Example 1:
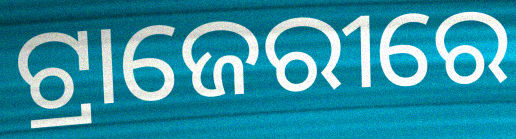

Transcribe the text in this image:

ଟ୍ରାଜେରୀରେ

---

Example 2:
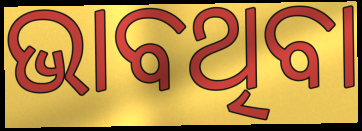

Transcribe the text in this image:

ଭାବଥିବା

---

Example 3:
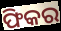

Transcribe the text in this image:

ଫିକର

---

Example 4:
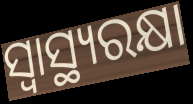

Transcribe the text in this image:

ସ୍ବାସ୍ଥ୍ୟରକ୍ଷା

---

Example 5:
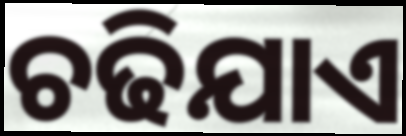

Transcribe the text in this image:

ଚଢିଯାଏ